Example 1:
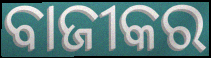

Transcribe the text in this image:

ବାଜୀକର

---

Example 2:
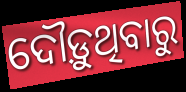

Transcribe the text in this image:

ଦୌଡ଼ୁଥିବାରୁ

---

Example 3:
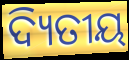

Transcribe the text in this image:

ଦ୍ଯିତୀୟ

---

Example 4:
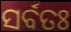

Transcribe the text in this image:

ସର୍ବତଃ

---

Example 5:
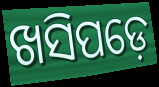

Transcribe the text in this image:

ଖସିପଡ଼େ